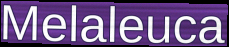
Melaleuca